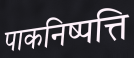
पाकनिष्पत्ति